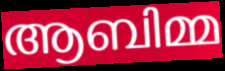
ആബിമ്മ